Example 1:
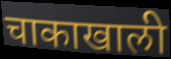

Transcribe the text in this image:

चाकाखाली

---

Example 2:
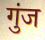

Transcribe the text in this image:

गुंज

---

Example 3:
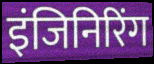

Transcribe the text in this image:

इंजिनिरिंग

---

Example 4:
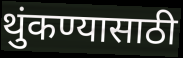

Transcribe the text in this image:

थुंकण्यासाठी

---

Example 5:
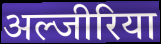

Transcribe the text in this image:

अल्जीरिया